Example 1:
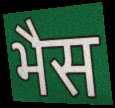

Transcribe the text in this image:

भैस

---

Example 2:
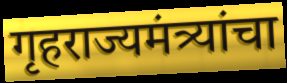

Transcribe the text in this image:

गृहराज्यमंत्र्यांचा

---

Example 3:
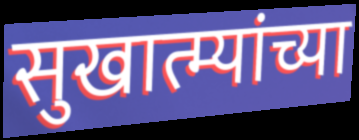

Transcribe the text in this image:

सुखात्म्यांच्या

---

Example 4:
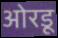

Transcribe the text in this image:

ओरडू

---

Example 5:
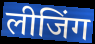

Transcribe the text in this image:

लीजिंग